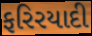
ફરિરયાદી